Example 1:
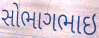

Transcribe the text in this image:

સોભાગભાઇ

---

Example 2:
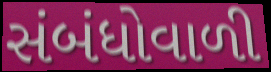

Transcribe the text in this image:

સંબંધોવાળી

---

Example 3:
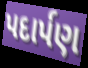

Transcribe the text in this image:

પદાર્પણ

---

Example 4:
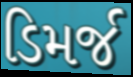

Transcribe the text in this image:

ડિમર્જ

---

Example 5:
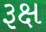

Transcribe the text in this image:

રૂક્ષ